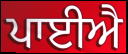
ਪਾਈਐ